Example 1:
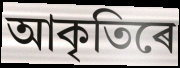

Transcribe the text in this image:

আকৃতিৰে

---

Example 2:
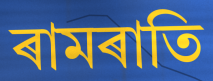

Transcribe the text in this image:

ৰামৰাতি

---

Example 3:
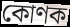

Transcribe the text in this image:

কোণক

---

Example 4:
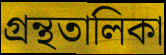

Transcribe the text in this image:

গ্ৰন্থতালিকা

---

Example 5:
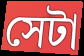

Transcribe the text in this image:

সেটা